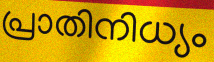
പ്രാതിനിധ്യം